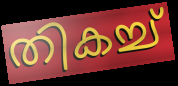
തികച്ച്